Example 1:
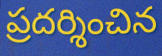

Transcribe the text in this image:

ప్రదర్శించిన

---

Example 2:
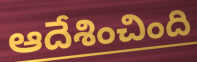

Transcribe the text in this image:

ఆదేశించింది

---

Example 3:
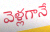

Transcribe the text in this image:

వెళ్లగానే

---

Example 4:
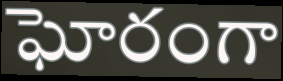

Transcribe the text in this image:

ఘోరంగా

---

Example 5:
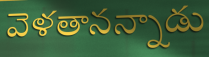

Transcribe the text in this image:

వెళతానన్నాడు